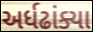
અર્ધઢાંક્યા